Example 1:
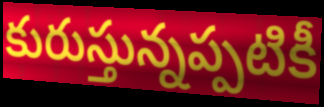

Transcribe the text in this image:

కురుస్తున్నప్పటికీ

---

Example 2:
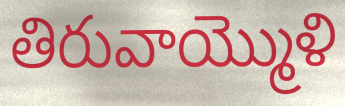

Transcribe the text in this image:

తిరువాయ్మొళి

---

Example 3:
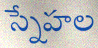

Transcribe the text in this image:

స్నేహల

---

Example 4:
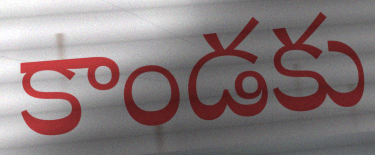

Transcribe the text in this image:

కాండకు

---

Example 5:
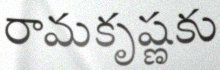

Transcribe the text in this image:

రామకృష్ణకు